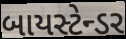
બાયસ્ટેન્ડર